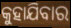
କୁହାଯିବାର